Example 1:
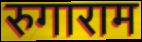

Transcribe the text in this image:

रुगाराम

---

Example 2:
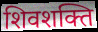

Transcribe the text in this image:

शिवशक्ति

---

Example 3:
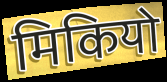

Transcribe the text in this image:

मिकियो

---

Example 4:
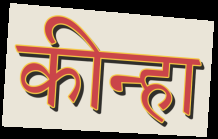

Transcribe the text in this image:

कीन्हा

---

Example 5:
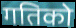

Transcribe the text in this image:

गतिको